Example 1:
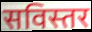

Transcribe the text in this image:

सविस्तर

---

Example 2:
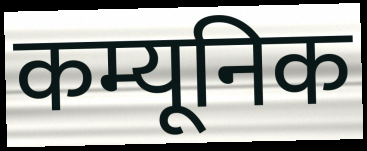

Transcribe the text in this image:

कम्यूनिक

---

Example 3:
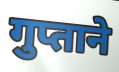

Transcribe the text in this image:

गुप्ताने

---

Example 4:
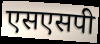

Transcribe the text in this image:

एसएसपी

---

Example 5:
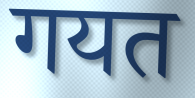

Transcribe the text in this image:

गयत